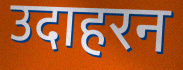
उदाहरन